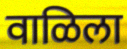
वाळिला